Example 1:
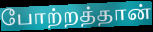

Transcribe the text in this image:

போற்றத்தான்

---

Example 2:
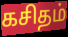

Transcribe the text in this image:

கசிதம்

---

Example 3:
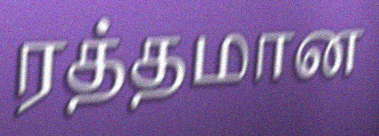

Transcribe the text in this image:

ரத்தமான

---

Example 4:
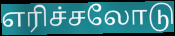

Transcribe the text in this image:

எரிச்சலோடு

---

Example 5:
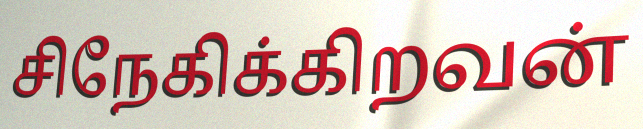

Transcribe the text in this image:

சிநேகிக்கிறவன்